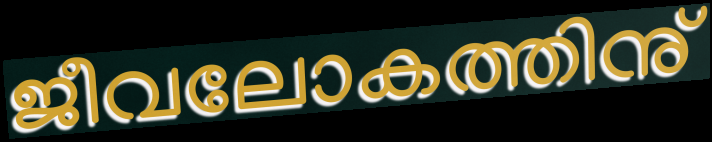
ജീവലോകത്തിനു്